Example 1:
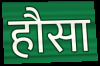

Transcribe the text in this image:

हौसा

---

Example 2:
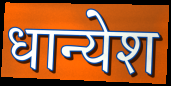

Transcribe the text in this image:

धान्येश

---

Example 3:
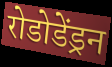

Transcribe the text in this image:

रोडोडेंड्रन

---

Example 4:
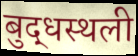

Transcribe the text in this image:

बुद्धस्थली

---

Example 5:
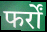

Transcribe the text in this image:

फर्रों